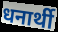
धनार्थी